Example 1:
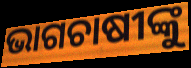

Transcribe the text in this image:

ଭାଗଚାଷୀଙ୍କୁ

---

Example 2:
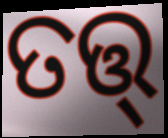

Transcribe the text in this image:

ତତ୍ତ୍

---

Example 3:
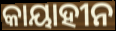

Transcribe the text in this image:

କାୟାହୀନ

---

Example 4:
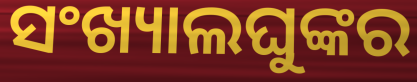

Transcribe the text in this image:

ସଂଖ୍ୟାଲଘୁଙ୍କର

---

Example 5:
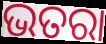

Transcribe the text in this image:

ଭତରା